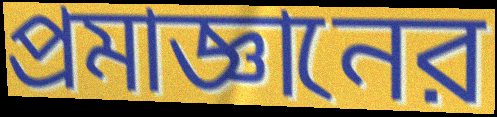
প্রমাজ্ঞানের